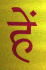
हें